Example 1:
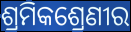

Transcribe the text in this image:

ଶ୍ରମିକଶ୍ରେଣୀର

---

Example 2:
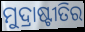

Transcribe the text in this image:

ମୁଦ୍ରାଷ୍ଟୀତିର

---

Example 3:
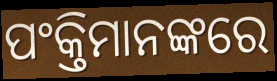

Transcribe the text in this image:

ପଂକ୍ତିମାନଙ୍କରେ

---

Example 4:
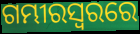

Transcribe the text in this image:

ଗମ୍ଭୀରସ୍ୱରରେ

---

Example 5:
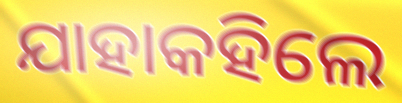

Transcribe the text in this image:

ଯାହାକହିଲେ